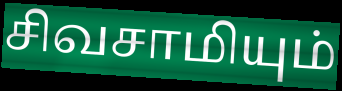
சிவசாமியும்